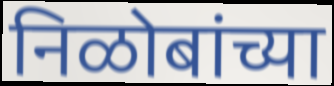
निळोबांच्या